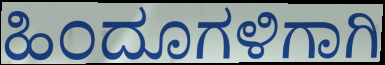
ಹಿಂದೂಗಳಿಗಾಗಿ